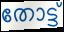
തോട്ട്